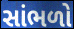
સાંભળો